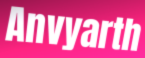
Anvyarth